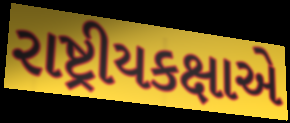
રાષ્ટ્રીયકક્ષાએ